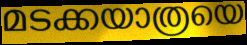
മടക്കയാത്രയെ